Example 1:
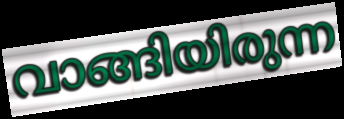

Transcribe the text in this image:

വാങ്ങിയിരുന്ന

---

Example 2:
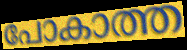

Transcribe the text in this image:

പോകാത്ത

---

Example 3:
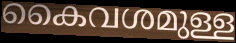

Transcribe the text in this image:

കൈവശമുള്ള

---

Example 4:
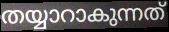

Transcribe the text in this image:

തയ്യാറാകുന്നത്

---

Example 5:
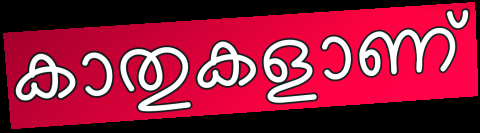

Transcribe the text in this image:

കാതുകളാണ്